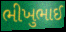
ભીખુભાઈ